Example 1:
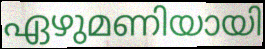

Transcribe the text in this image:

ഏഴുമണിയായി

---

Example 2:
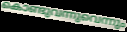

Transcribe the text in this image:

കൊണ്ടുവന്നുവെന്നും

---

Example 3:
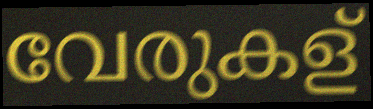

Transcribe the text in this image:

വേരുകള്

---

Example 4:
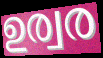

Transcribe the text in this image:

ഉര്വര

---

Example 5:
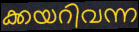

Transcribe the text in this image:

ക്കയറിവന്ന